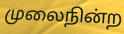
முலைநின்ற